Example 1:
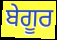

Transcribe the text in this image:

ਬੇਗੂਰ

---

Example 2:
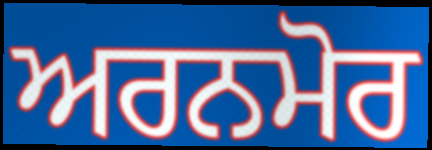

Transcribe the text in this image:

ਅਰਨਮੋਰ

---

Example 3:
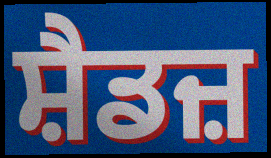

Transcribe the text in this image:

ਸ਼ੈਡਜ਼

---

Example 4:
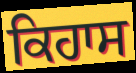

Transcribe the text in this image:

ਕਿਹਾਸ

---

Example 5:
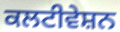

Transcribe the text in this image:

ਕਲਟੀਵੇਸ਼ਨ